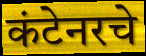
कंटेनरचे